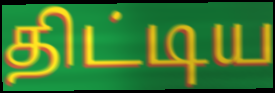
திட்டிய